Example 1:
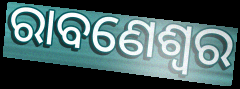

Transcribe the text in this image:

ରାବଣେଶ୍ୱର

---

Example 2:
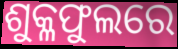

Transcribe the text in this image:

ଶୁକ୍ଳଫୁଲରେ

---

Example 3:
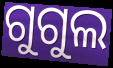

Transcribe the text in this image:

ଗୁଗୁଲ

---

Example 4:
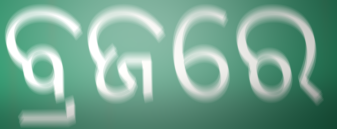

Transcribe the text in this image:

ବ୍ରଜରେ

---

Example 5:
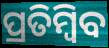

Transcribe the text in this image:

ପ୍ରତିମ୍ବିବ